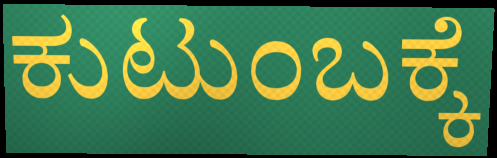
ಕುಟುಂಬಕ್ಕೆ